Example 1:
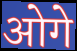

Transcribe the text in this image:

ओगे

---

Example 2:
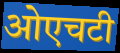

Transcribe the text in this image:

ओएचटी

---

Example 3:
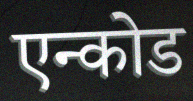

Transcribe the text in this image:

एन्कोड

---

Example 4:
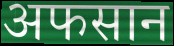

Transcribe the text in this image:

अफसान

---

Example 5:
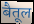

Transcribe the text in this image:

बैतूल